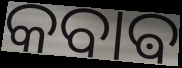
କବାଵ